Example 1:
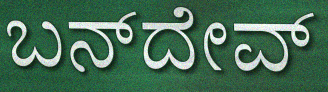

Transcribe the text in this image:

ಬನ್‌ದೇವ್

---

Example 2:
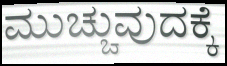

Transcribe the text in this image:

ಮುಚ್ಚುವುದಕ್ಕೆ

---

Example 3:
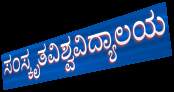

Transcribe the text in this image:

ಸಂಸ್ಕೃತವಿಶ್ವವಿದ್ಯಾಲಯ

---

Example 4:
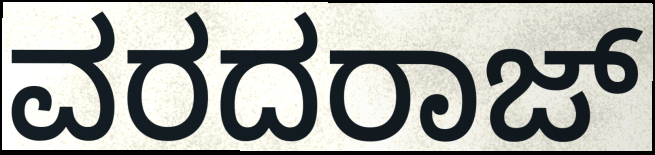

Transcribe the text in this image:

ವರದರಾಜ್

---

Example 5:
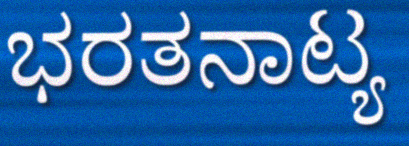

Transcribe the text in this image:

ಭರತನಾಟ್ಯ